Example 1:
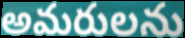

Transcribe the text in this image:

అమరులను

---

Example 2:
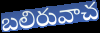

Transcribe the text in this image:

బలిరువాచ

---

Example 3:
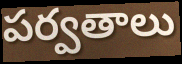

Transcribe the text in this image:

పర్వతాలు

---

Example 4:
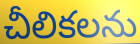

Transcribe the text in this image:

చీలికలను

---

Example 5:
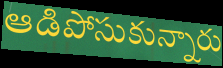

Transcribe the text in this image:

ఆడిపోసుకున్నారు